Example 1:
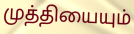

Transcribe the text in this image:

முத்தியையும்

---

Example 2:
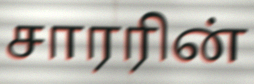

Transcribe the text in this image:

சாரரின்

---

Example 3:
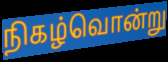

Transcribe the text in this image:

நிகழ்வொன்று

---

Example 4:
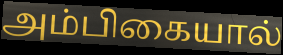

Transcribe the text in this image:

அம்பிகையால்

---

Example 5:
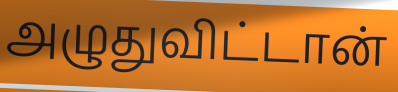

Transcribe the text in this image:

அழுதுவிட்டான்